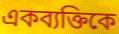
একব্যক্তিকে